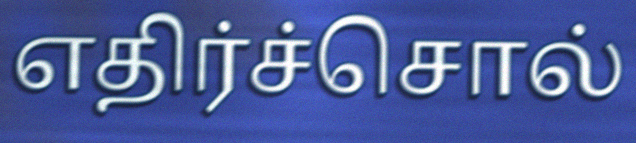
எதிர்ச்சொல்